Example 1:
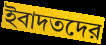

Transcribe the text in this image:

ইবাদতদের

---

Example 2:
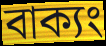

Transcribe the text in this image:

বাক্যং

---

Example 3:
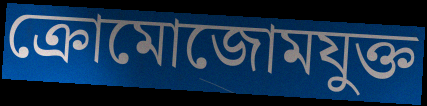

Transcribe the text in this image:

ক্রোমোজোমযুক্ত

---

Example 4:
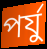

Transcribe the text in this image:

পর্যু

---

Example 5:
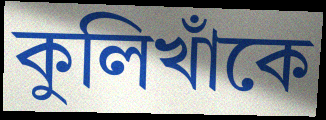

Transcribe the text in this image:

কুলিখাঁকে